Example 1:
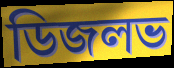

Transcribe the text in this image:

ডিজলভ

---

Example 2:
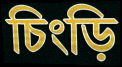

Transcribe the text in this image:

চিংড়ি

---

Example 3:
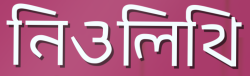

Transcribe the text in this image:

নিওলিথি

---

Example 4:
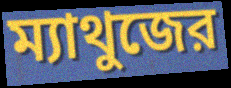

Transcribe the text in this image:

ম্যাথুজের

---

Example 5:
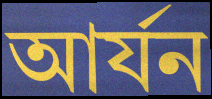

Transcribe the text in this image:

আর্যন